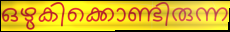
ഒഴുകിക്കൊണ്ടിരുന്ന